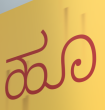
ಹೂ